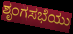
ಶೃಂಗಸಭೆಯು